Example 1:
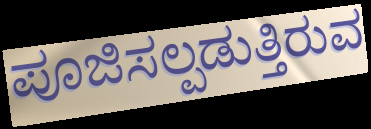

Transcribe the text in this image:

ಪೂಜಿಸಲ್ಪಡುತ್ತಿರುವ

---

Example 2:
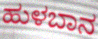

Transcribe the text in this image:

ಹುಳಬಾನ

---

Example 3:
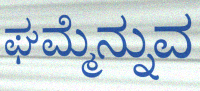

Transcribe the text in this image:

ಘಮ್ಮೆನ್ನುವ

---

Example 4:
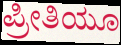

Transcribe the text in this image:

ಪ್ರೀತಿಯೂ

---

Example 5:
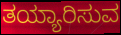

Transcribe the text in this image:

ತಯ್ಯಾರಿಸುವ